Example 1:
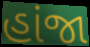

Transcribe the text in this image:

હાંજા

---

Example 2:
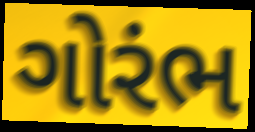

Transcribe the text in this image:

ગોરંભ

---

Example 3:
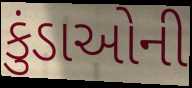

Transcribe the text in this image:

કુંડાઓની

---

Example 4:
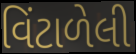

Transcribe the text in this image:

વિંટાળેલી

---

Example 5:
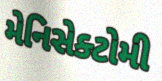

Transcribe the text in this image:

મેનિસેક્ટોમી